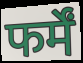
फर्में